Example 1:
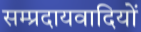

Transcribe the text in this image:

सम्प्रदायवादियों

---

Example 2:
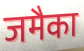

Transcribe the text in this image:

जमैका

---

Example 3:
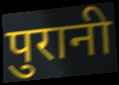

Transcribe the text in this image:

पुरानी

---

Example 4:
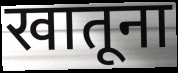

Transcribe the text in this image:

खातूना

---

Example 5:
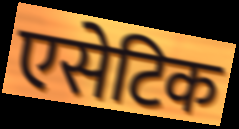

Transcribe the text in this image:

एसेटिक